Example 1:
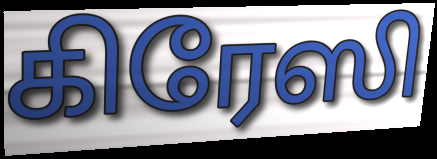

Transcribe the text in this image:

கிரேஸி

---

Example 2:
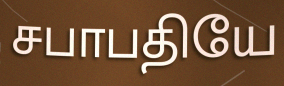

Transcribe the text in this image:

சபாபதியே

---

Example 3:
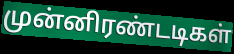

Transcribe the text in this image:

முன்னிரண்டடிகள்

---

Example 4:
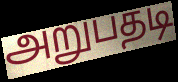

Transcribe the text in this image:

அறுபதடி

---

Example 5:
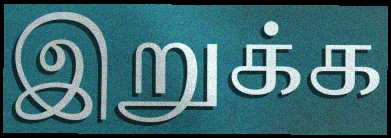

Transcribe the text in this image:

இறுக்க